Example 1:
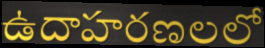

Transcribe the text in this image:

ఉదాహరణలలో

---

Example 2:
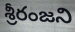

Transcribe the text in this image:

శ్రీరంజని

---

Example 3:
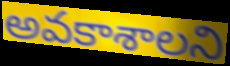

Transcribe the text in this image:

అవకాశాలని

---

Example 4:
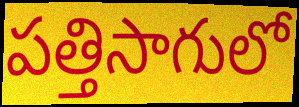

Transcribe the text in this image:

పత్తిసాగులో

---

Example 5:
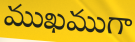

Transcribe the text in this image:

ముఖముగా